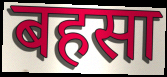
बहसा